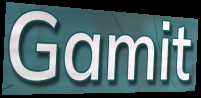
Gamit